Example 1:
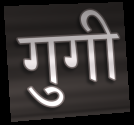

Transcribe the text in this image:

गुगी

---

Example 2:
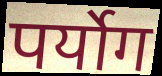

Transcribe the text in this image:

पर्योग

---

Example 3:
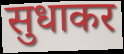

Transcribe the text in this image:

सुधाकर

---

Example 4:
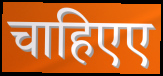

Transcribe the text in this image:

चाहिएए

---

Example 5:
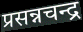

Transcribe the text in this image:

प्रसन्नचन्द्र